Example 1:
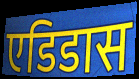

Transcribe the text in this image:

एडिडास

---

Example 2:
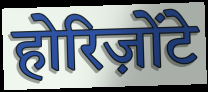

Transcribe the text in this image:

होरिज़ोंटे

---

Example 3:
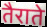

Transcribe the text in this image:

तैराते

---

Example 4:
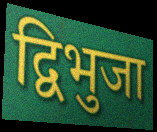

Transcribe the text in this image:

द्विभुजा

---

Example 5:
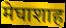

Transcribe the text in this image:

मेघाशाह